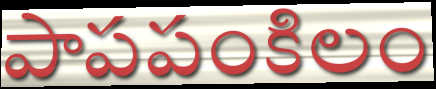
పాపపంకిలం